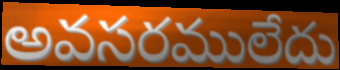
అవసరములేదు